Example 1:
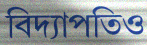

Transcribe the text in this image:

বিদ্যাপতিও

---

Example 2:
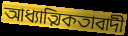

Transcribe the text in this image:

আধ্যাত্মিকতাবাদী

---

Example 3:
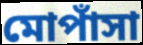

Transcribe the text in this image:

মোপাঁসা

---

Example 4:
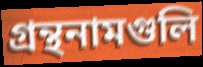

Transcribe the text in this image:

গ্রন্থনামগুলি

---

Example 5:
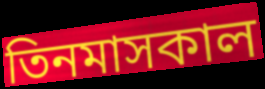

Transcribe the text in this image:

তিনমাসকাল